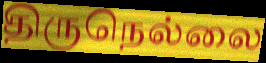
திருநெல்லை